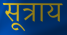
सूत्राय